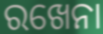
ରଖେନା